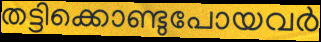
തട്ടിക്കൊണ്ടുപോയവർ